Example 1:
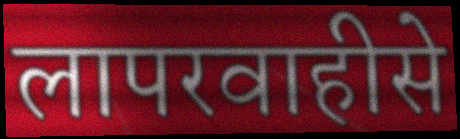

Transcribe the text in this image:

लापरवाहीसे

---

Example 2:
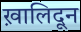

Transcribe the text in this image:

ख़ालिदून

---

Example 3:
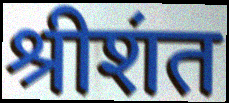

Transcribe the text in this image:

श्रीशंत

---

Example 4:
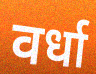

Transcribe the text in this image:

वर्धा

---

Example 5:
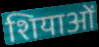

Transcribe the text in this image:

शियाओं